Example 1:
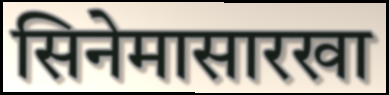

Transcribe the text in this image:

सिनेमासारखा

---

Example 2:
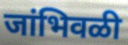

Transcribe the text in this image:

जांभिवळी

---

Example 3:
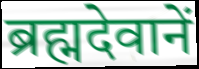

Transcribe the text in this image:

ब्रह्मदेवानें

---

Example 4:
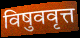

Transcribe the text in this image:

विषुववृत्त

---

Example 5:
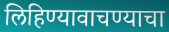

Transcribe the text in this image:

लिहिण्यावाचण्याचा